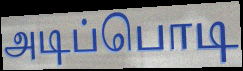
அடிப்பொடி